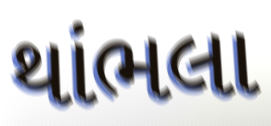
થાંભલા